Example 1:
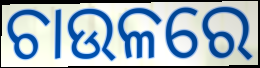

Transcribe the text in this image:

ଚାଉଳରେ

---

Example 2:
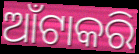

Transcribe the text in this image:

ଆଁଟାକରି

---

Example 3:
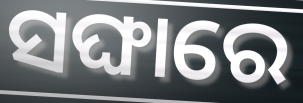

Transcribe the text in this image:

ସଙ୍ଘାରେ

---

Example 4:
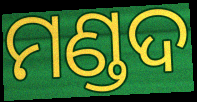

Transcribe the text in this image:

ମଣ୍ଡଦ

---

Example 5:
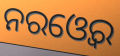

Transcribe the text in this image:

ନରଓ୍ବେର